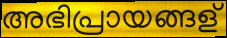
അഭിപ്രായങ്ങള്